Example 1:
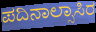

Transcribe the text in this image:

ಪದಿನಾಲ್ಸಾಸಿರ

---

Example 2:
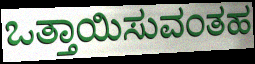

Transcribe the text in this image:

ಒತ್ತಾಯಿಸುವಂತಹ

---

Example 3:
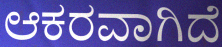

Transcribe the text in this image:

ಆಕರವಾಗಿದೆ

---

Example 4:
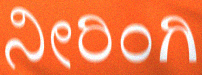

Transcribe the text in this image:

ನೀರಿಂಗಿ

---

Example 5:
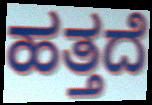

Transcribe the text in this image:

ಹತ್ತದೆ